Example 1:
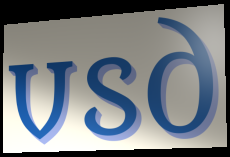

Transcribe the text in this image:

usd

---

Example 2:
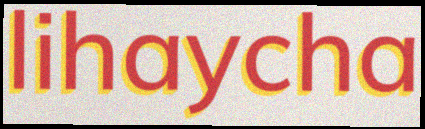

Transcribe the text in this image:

lihaycha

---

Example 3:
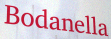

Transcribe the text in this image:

Bodanella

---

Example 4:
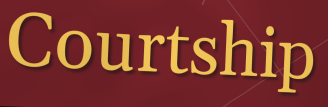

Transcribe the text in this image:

Courtship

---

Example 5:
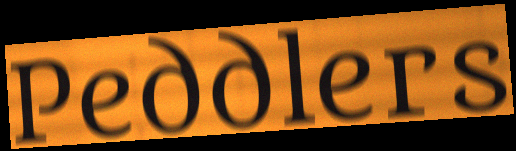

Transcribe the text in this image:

Peddlers